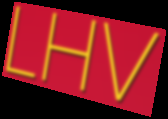
LHV